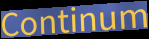
Continum